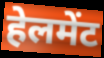
हेलमेंट